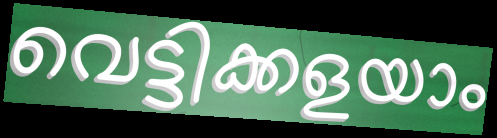
വെട്ടിക്കളയാം